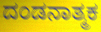
ದಂಡನಾತ್ಮಕ